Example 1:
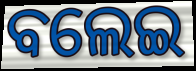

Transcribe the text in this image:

ବଲେଇ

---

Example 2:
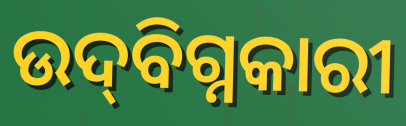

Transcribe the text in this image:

ଉଦ୍‌ବିଗ୍ନକାରୀ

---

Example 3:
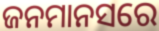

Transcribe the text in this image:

ଜନମାନସରେ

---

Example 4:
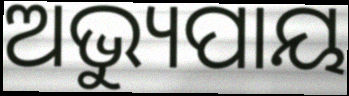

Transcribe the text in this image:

ଅଭ୍ୟୁପାୟ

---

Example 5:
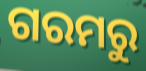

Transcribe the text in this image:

ଗରମରୁ